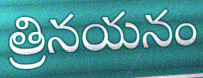
త్రినయనం